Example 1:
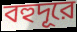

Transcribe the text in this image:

বহুদূরে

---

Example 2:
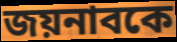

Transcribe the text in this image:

জয়নাবকে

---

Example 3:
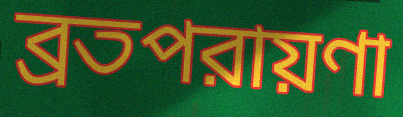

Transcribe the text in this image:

ব্রতপরায়ণা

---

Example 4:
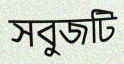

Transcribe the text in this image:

সবুজটি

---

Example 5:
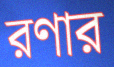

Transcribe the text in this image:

রণার